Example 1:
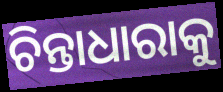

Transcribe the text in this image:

ଚିନ୍ତାଧାରାକୁ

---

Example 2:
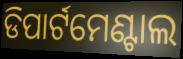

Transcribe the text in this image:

ଡିପାର୍ଟମେଣ୍ଟାଲ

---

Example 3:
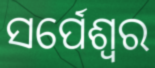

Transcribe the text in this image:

ସର୍ପେଶ୍ଵର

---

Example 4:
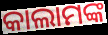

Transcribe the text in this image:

କାଲାମଙ୍କ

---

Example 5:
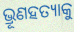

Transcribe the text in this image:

ଭ୍ରୂଣହତ୍ୟାକୁ